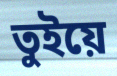
তুইয়ে